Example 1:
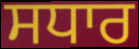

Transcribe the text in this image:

ਸਧਾਰ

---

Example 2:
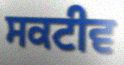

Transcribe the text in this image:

ਸਕਟੀਵ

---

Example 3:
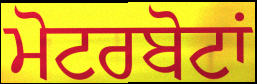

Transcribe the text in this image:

ਮੋਟਰਬੋਟਾਂ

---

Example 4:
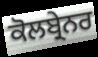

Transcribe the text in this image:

ਕੋਲਬ੍ਰੇਨਰ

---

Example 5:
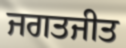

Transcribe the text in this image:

ਜਗਤਜੀਤ